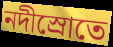
নদীস্রোতে